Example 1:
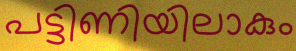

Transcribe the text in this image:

പട്ടിണിയിലാകും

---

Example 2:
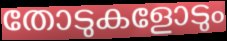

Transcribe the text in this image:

തോടുകളോടും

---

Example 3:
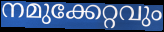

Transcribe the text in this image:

നമുക്കേറ്റവും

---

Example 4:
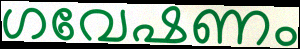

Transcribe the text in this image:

ഗവേഷണം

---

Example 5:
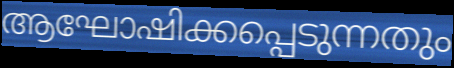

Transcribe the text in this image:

ആഘോഷിക്കപ്പെടുന്നതും